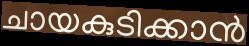
ചായകുടിക്കാൻ